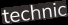
technic